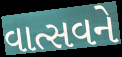
વાત્સવને